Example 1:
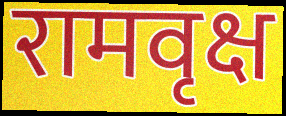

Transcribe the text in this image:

रामवृक्ष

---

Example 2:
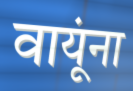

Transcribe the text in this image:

वायूंना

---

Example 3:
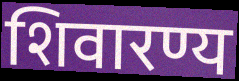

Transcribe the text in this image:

शिवारण्य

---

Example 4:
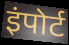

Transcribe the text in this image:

इंपोर्ट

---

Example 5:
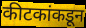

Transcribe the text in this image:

कीटकांकडून